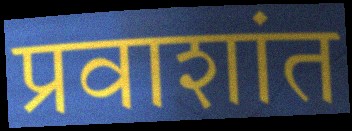
प्रवाशांत